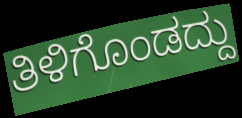
ತಿಳಿಗೊಂಡದ್ದು